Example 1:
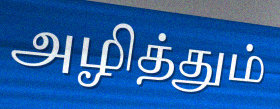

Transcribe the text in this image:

அழித்தும்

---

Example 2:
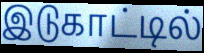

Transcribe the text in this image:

இடுகாட்டில்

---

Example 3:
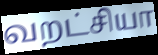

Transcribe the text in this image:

வறட்சியா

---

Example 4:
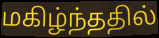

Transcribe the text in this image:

மகிழ்ந்ததில்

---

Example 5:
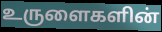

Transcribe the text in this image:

உருளைகளின்